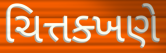
ચિત્તક્ખણે